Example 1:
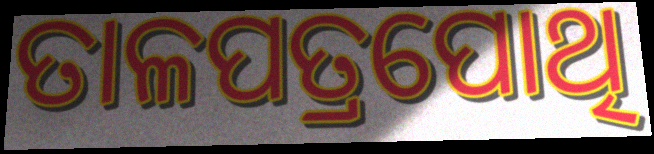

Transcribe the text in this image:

ତାଳପତ୍ରପୋଥି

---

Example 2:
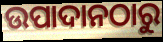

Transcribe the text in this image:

ଉପାଦାନଠାରୁ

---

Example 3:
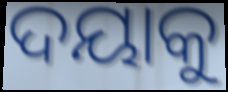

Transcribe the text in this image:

ଦୟାକୁ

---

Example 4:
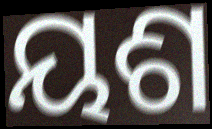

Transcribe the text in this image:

ୟଶ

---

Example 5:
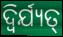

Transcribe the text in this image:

ଦ୍ୱିର୍ଯ୍ୟତ୍